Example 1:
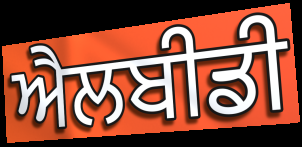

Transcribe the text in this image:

ਐਲਬੀਡੀ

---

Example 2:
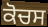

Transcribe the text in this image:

ਕੋਚਸ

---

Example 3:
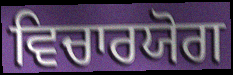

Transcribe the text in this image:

ਵਿਚਾਰਯੋਗ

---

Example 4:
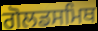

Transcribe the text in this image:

ਗੋਲਡਸਮਿਥ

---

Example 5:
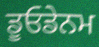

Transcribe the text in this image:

ਡੂਓਡੇਨਮ